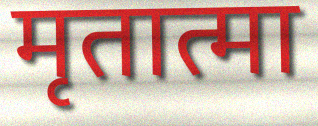
मृतात्मा